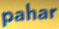
pahar